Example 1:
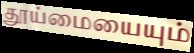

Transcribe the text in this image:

தூய்மையையும்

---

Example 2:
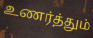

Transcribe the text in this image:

உணர்த்தும்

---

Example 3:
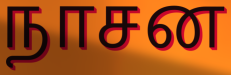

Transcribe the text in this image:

நாசன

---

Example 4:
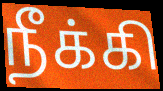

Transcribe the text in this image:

நீக்கி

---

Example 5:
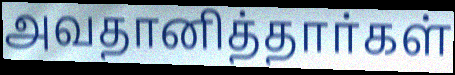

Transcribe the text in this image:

அவதானித்தார்கள்